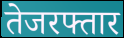
तेजरफ्तार